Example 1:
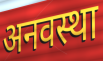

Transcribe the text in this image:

अनवस्था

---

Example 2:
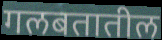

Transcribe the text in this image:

गलबतातील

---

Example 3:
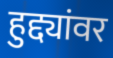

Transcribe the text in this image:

हुद्द्यांवर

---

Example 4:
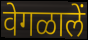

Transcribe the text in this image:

वेगळालें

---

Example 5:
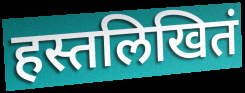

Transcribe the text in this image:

हस्तलिखितं